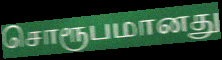
சொரூபமானது